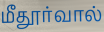
மீதூர்வால்